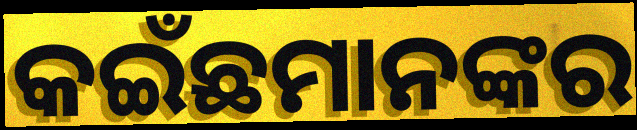
କଇଁଛମାନଙ୍କର